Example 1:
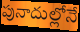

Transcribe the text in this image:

పునాదుల్లోనే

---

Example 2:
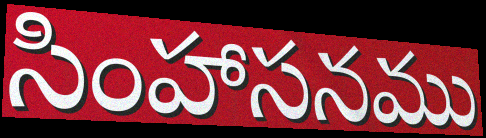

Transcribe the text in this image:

సింహాసనము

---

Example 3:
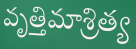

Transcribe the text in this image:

వృత్తిమాశ్రిత్య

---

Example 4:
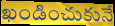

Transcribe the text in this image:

ఖండించుకునే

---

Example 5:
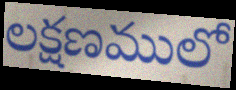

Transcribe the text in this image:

లక్షణములో